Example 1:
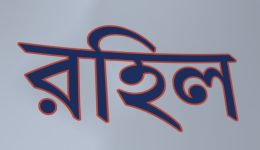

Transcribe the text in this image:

রহিল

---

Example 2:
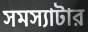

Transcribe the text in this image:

সমস্যাটার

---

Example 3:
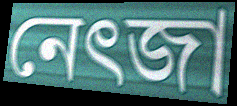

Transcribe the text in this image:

নেৎজা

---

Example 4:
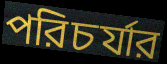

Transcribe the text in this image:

পরিচর্যার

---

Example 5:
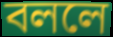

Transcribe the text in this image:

বললে